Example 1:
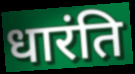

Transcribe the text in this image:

धारंति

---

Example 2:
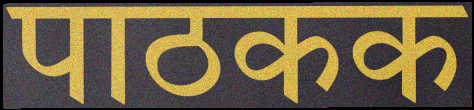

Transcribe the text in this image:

पाठकक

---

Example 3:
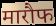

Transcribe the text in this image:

मारौफ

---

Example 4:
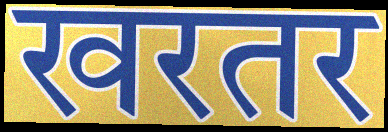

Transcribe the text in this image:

खरतर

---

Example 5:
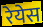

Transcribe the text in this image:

रेयेस